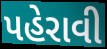
પહેરાવી